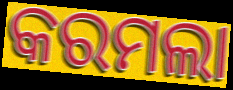
କରମଲା